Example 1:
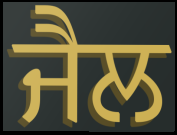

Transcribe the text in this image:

ਜੈਲ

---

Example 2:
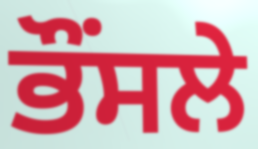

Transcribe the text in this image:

ਭੌਂਸਲੇ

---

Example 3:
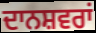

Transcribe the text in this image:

ਦਾਨਸ਼ਵਰਾਂ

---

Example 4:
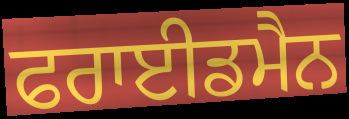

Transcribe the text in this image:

ਫਰਾਈਡਮੈਨ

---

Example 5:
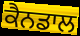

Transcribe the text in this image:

ਕੈਨਡਾਲ